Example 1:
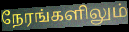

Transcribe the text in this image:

நேரங்களிலும்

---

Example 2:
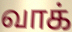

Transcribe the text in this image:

வாக்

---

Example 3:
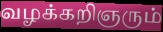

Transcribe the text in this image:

வழக்கறிஞரும்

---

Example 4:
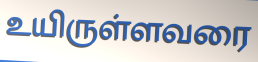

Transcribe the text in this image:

உயிருள்ளவரை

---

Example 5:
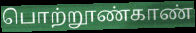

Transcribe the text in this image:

பொற்றூண்காண்